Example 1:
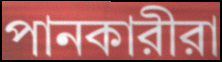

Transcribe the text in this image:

পানকারীরা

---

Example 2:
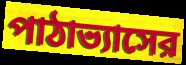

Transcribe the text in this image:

পাঠাভ্যাসের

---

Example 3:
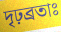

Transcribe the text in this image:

দৃঢ়ব্রতাঃ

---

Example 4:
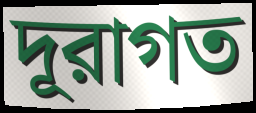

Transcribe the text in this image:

দূরাগত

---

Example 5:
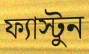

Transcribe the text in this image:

ফ্যাস্টুন